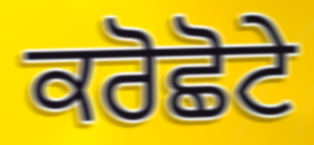
ਕਰੋਛੋਟੇ